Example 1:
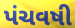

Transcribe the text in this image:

પંચવષી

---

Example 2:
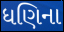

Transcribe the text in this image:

ધણિના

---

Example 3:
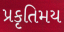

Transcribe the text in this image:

પ્રકૃતિમય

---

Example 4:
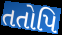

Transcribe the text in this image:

તતોપિ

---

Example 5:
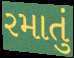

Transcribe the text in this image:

રમાતું